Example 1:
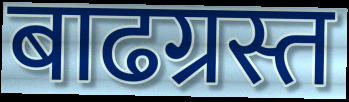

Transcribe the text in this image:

बाढग्रस्त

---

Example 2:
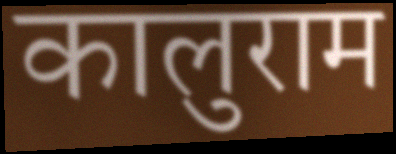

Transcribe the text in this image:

कालुराम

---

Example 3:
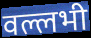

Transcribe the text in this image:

वल्लभी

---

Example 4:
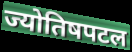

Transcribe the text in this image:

ज्योतिषपटल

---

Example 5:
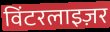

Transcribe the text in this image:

विंटरलाइज़र